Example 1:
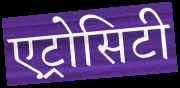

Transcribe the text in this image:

एट्रोसिटी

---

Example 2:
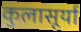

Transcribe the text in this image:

कुलासूर्या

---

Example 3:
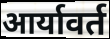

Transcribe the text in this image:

आर्यावर्त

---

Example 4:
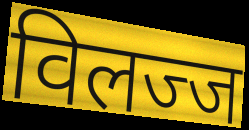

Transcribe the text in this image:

विलज्ज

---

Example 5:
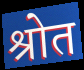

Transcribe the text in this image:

श्रोत